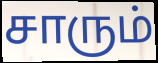
சாரும்